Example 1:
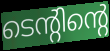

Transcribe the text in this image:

ടെന്റിന്റെ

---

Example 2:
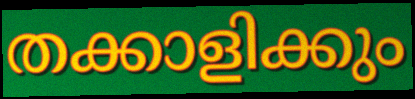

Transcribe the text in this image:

തക്കാളിക്കും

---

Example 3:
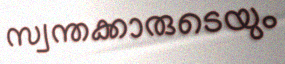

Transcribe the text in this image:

സ്വന്തക്കാരുടെയും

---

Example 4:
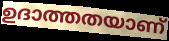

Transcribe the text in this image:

ഉദാത്തതയാണ്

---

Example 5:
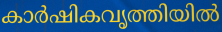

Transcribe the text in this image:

കാർഷികവൃത്തിയിൽ